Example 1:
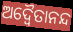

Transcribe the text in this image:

ଅଦ୍ଵୈତାନନ୍ଦ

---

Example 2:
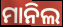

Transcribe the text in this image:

ମାନିଲ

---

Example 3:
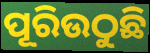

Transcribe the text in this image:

ପୂରିଉଠୁଛି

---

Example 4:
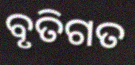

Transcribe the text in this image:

ବୃତିଗତ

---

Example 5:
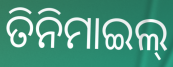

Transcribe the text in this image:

ତିନିମାଇଲ୍